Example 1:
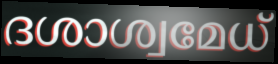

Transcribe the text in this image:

ദശാശ്വമേധ്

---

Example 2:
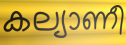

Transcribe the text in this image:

കല്യാണീ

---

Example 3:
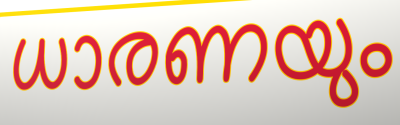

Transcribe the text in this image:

ധാരണയും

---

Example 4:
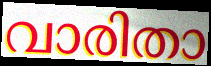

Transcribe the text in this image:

വാരിതാ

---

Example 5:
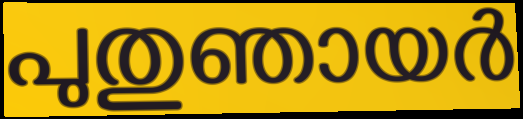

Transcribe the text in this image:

പുതുഞായർ